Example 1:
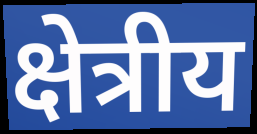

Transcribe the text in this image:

क्षेत्रीय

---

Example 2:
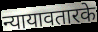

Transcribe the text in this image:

न्यायावतारके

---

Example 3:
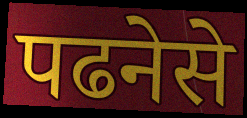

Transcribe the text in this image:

पढनेसे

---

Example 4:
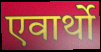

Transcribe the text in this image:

एवार्थो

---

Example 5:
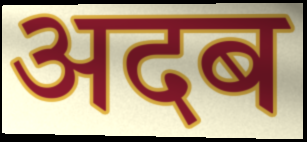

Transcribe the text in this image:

अदब